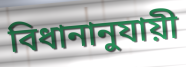
বিধানানুযায়ী